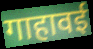
गाहावई